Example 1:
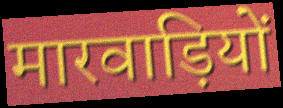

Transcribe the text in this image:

मारवाड़ियों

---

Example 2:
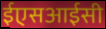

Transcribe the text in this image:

ईएसआईसी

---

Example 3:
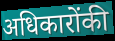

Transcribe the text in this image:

अधिकारोंकी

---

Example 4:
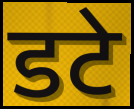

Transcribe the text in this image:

डटे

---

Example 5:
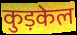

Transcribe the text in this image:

कुड़केल